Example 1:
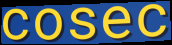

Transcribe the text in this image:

cosec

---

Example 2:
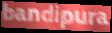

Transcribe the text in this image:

bandipura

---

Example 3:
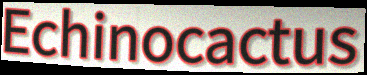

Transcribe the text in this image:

Echinocactus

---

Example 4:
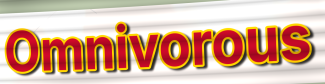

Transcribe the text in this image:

Omnivorous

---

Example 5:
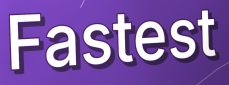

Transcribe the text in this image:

Fastest